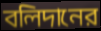
বলিদানের